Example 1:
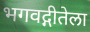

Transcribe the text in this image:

भगवद्गीतेला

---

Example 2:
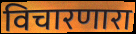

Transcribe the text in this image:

विचारणारा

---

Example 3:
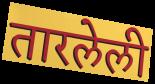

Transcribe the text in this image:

तारलेली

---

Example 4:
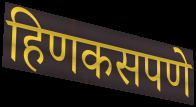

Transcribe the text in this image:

हिणकसपणे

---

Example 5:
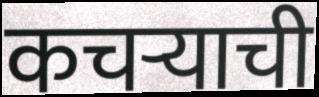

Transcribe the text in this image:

कचर्‍याची